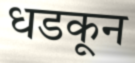
धडकून